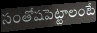
సంతోషపెట్టాలంటే